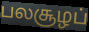
பலசூழப்